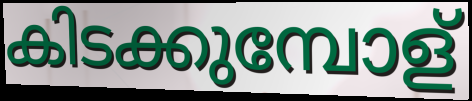
കിടക്കുമ്പോള്